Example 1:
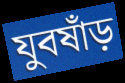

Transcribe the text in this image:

যুবষাঁড়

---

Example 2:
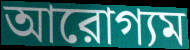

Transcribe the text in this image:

আরোগ্যম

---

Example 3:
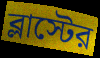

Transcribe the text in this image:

ব্লাস্টের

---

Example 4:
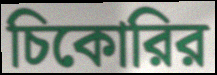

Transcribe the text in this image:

চিকোরির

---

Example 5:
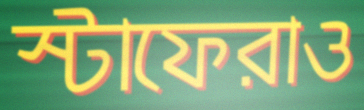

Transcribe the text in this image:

স্টাফেরাও